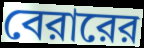
বেরারের